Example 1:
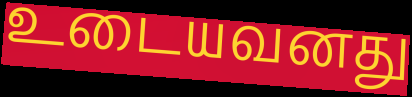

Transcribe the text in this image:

உடையவனது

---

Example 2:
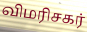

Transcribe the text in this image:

விமரிசகர்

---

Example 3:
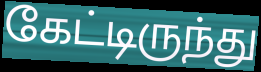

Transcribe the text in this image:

கேட்டிருந்து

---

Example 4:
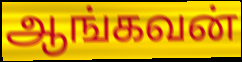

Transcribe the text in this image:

ஆங்கவன்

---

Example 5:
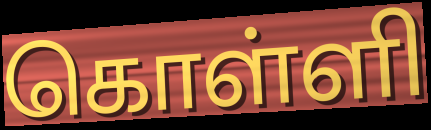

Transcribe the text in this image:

கொள்ளி